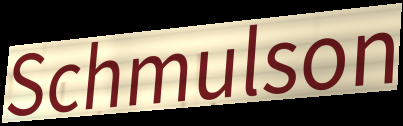
Schmulson